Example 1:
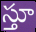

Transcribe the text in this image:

స్తూ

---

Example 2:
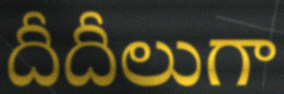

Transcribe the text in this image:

దీదీలుగా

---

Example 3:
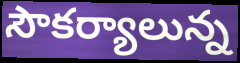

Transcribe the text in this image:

సౌకర్యాలున్న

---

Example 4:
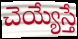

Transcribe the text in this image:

చెయ్యేస్తే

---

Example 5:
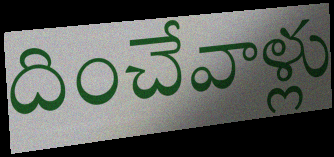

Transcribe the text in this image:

దించేవాళ్లు